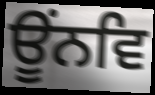
ਊਂਨਵਿ